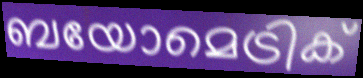
ബയോമെട്രിക്